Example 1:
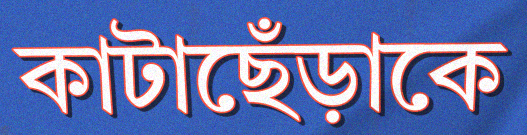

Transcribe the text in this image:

কাটাছেঁড়াকে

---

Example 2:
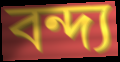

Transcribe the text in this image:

বন্দ্য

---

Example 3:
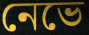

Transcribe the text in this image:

নেভে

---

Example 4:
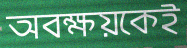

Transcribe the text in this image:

অবক্ষয়কেই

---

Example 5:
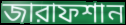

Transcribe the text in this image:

জারাফশান